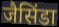
जैसिंडा